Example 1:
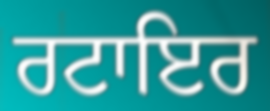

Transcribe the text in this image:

ਰਟਾਇਰ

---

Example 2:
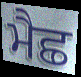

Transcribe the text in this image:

ਮੈਛ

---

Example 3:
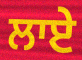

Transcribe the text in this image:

ਲਾਏ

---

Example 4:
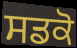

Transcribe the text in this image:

ਸਡਕੋ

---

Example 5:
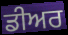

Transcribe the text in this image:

ਡੀਅਰ